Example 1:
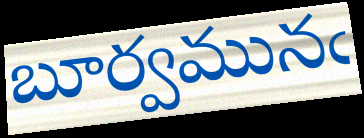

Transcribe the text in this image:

బూర్వమునఁ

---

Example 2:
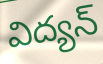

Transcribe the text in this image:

విద్యన్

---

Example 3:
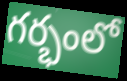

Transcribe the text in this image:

గర్భంలో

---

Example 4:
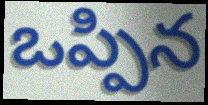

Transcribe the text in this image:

ఒప్పిన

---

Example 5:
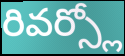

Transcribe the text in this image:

రివర్స్లో